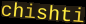
chishti